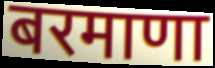
बरमाणा